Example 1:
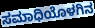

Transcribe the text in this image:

ಸಮಾಧಿಯೊಳಗಿನ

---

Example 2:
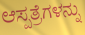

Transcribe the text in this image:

ಆಸ್ಪತ್ರೆಗಳನ್ನು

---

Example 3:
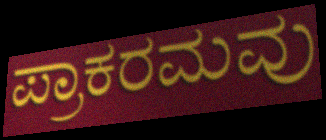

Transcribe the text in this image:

ಪ್ರಾಕರಮವು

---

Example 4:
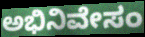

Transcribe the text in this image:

ಅಭಿನಿವೇಸಂ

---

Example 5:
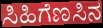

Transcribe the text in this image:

ಸಿಹಿಗೆಣಸಿನ